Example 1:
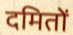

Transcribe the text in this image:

दमितों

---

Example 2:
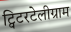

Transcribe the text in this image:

ट्विटरटेलीग्राम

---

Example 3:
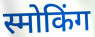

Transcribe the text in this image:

स्मोकिंग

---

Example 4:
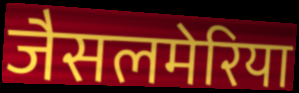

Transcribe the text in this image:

जैसलमेरिया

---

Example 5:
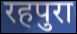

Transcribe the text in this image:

रहपुरा